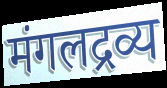
मंगलद्रव्य